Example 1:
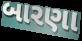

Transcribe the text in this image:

બારણા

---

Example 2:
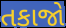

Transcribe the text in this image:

તકાજો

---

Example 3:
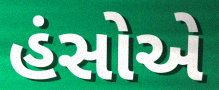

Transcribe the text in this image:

હંસોએ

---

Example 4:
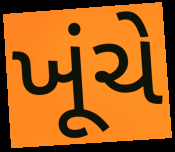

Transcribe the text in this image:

ખૂંચે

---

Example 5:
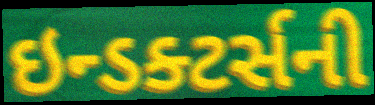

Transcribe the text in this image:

ઇન્ડક્ટર્સની